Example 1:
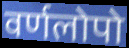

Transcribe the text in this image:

वर्णलोपो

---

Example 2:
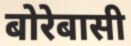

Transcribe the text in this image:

बोरेबासी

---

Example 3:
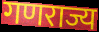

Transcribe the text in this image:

गणराज्य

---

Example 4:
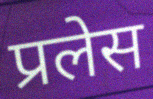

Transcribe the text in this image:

प्रलेस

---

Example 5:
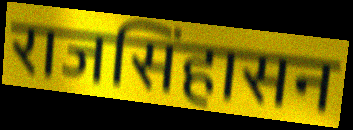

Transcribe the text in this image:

राजसिंहासन